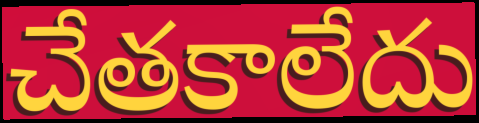
చేతకాలేదు